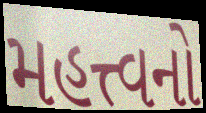
મહત્ત્વનો